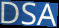
DSA